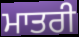
ਮਾਤਰੀ